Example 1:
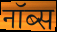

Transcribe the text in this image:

नॉब्स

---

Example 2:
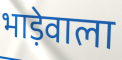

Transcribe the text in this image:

भाड़ेवाला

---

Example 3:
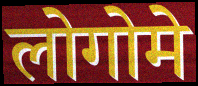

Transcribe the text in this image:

लोगोमे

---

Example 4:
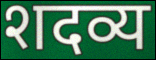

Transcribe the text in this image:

शदव्य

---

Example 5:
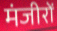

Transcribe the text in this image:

मंजीरों